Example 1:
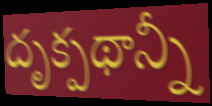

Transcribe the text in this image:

దృక్పథాన్నీ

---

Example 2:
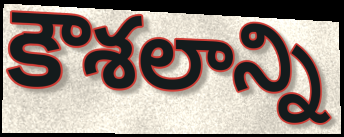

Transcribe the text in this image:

కౌశలాన్ని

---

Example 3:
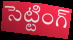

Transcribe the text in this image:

సెట్టింగ్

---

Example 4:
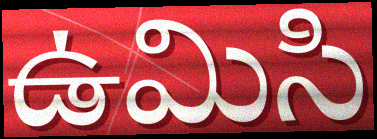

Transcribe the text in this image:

ఉమిసి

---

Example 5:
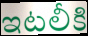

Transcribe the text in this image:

ఇటలీకి